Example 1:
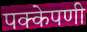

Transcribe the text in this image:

पक्केपणी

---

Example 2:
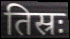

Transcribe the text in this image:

तिस्रः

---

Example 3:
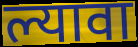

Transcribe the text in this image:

ल्यावा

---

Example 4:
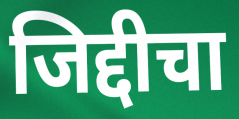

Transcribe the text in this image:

जिद्दीचा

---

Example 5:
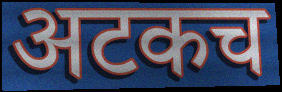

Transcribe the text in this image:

अटकच